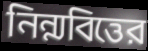
নিন্মবিত্তের